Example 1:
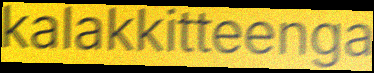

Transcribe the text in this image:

kalakkitteenga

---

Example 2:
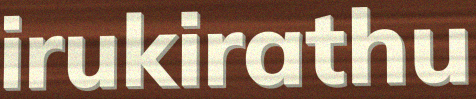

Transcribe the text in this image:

irukirathu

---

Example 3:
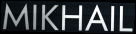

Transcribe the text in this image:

MIKHAIL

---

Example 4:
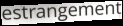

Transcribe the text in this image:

estrangement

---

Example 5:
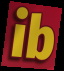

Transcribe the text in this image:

ib